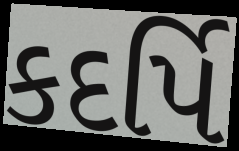
કદર્પિ